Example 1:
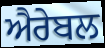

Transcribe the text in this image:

ਐਰੇਬਲ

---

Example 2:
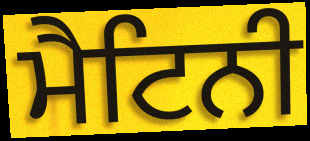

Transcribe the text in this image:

ਮੈਟਿਨੀ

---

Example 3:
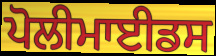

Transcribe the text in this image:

ਪੋਲੀਮਾਈਡਸ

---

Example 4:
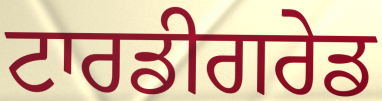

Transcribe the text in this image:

ਟਾਰਡੀਗਰੇਡ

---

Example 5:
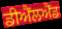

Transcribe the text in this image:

ਡੀਐੱਲਐੱਡ